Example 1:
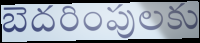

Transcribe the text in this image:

బెదరింపులకు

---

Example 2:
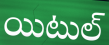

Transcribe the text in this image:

యిటుల్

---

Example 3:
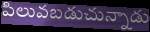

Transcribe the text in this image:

పిలువబడుచున్నాడు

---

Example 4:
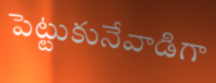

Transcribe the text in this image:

పెట్టుకునేవాడిగా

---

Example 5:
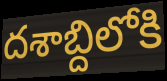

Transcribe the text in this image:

దశాబ్దిలోకి